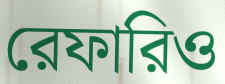
রেফারিও